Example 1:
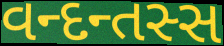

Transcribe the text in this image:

વન્દન્તસ્સ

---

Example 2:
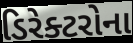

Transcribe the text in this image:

ડિરેક્ટરોના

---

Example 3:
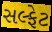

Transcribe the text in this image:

સલ્ફેટ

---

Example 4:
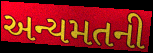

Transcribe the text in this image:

અન્યમતની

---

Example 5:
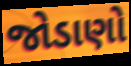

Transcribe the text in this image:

જોડાણો